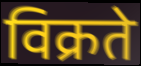
विक्रते